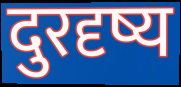
दुरदृष्य